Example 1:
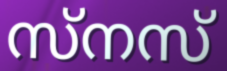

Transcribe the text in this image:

സ്നസ്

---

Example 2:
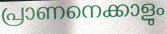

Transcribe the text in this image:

പ്രാണനെക്കാളും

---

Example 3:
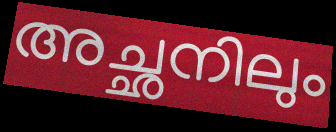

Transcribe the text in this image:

അച്ഛനിലും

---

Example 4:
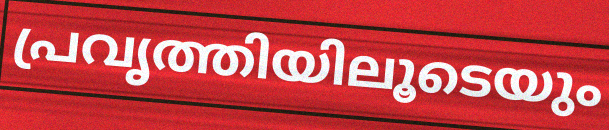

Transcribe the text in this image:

പ്രവൃത്തിയിലൂടെയും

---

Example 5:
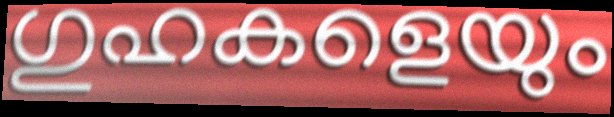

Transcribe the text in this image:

ഗുഹകളെയും